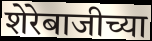
शेरेबाजीच्या